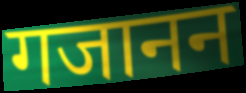
गजानन